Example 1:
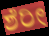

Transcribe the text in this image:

ಶೆರೀ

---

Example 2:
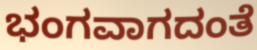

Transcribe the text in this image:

ಭಂಗವಾಗದಂತೆ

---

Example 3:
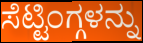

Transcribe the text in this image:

ಸೆಟ್ಟಿಂಗ್ಗಳನ್ನು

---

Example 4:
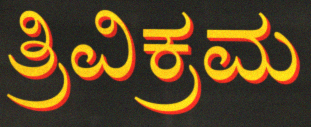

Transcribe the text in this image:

ತ್ರಿವಿಕ್ರಮ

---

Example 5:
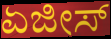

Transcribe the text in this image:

ಏಜೀಸ್